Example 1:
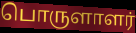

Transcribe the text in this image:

பொருளாளர்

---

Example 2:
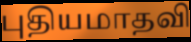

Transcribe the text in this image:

புதியமாதவி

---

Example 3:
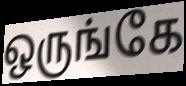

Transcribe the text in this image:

ஒருங்கே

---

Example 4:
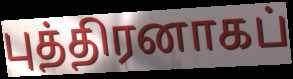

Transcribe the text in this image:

புத்திரனாகப்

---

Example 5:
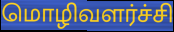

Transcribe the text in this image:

மொழிவளர்ச்சி